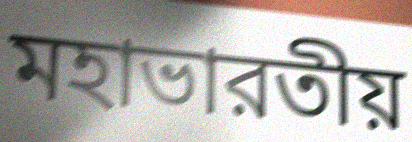
মহাভারতীয়